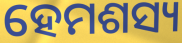
ହେମଶସ୍ୟ